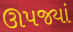
ઊપજ્યાં